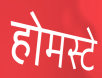
होमस्टे